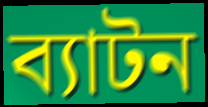
ব্যাটন